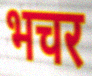
भचर